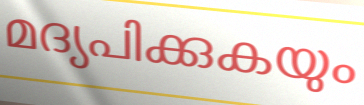
മദ്യപിക്കുകയും